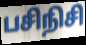
பசிநிசி